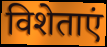
विशेताएं